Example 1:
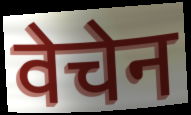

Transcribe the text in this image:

वेचेन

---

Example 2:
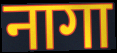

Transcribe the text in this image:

नागा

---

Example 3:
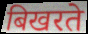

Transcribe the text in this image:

बिखरते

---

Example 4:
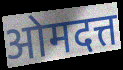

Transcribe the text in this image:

ओमदत्त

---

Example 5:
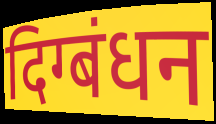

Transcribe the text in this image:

दिग्बंधन